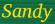
Sandy